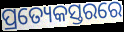
ପ୍ରତ୍ୟେକସ୍ତରରେ